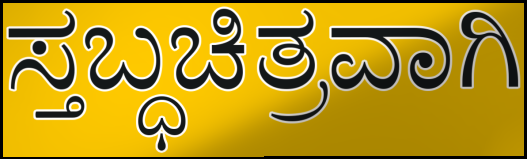
ಸ್ತಬ್ಧಚಿತ್ರವಾಗಿ